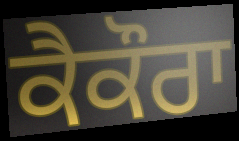
ਕੈਕੌਰਾ